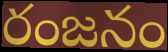
రంజనం